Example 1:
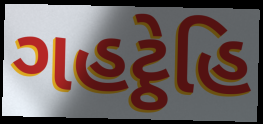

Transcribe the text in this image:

ગહટ્ઠેહિ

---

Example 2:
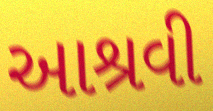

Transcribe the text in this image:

આશ્રવી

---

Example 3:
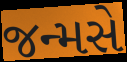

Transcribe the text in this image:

જન્મસે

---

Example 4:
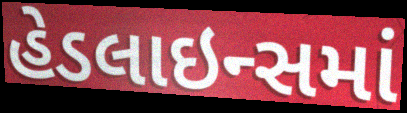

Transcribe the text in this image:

હેડલાઇન્સમાં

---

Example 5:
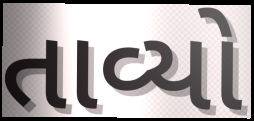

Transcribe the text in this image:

તાવ્યો